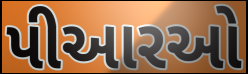
પીઆરઓ